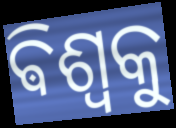
ଵିଶ୍ଵକୁ